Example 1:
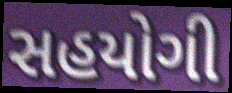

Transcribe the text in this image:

સહયોગી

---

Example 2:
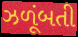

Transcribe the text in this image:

ઝળૂંબતી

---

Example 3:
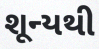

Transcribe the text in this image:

શૂન્યથી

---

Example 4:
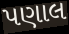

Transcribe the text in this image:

પણાલ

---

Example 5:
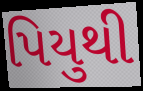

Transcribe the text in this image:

પિયુથી